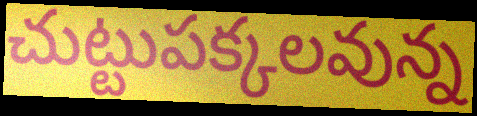
చుట్టుపక్కలవున్న